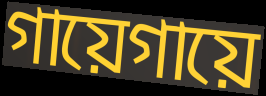
গায়েগায়ে